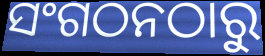
ସଂଗଠନଠାରୁ